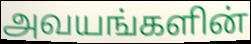
அவயங்களின்